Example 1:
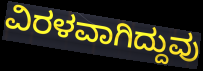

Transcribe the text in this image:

ವಿರಳವಾಗಿದ್ದುವು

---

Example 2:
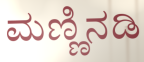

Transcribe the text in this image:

ಮಣ್ಣಿನಡಿ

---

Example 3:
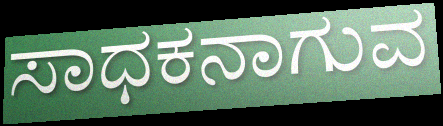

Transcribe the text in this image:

ಸಾಧಕನಾಗುವ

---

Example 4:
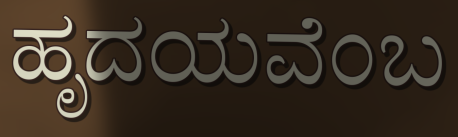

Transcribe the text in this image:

ಹೃದಯವೆಂಬ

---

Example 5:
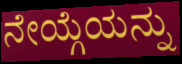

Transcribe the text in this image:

ನೇಯ್ಗೆಯನ್ನು